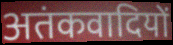
अतंकवादियों